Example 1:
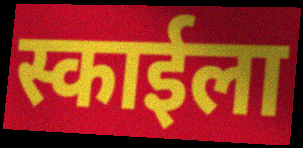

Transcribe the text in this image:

स्काईला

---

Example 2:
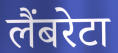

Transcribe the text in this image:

लैंबरेटा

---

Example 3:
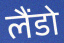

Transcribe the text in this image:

लैंडो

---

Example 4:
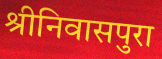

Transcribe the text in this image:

श्रीनिवासपुरा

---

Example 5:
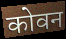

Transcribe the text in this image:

कोवन